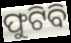
ଫୁଟିବି